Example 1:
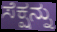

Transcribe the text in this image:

ಸೆಕ್ಷನ್ನು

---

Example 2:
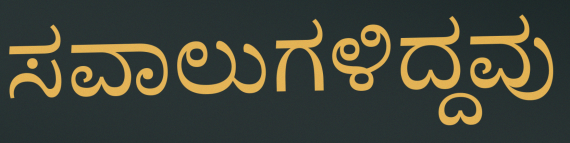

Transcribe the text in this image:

ಸವಾಲುಗಳಿದ್ದವು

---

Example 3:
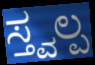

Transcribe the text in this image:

ಸ್ತ್ವಲ್ಪ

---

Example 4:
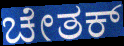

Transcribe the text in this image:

ಚೇತಕ್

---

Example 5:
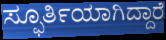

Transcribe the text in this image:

ಸ್ಫೂರ್ತಿಯಾಗಿದ್ದಾರೆ